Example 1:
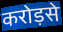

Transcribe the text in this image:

करोड़से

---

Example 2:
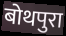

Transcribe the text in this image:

बोथपुरा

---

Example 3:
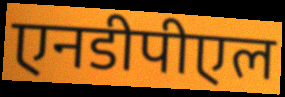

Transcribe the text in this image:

एनडीपीएल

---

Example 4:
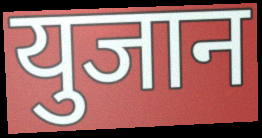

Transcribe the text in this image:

युजान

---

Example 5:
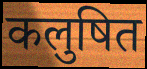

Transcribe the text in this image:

कलुषित